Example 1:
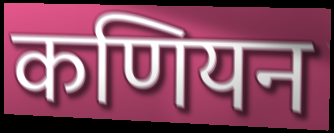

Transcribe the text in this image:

कणियन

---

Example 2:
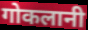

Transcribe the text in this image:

गोकलानी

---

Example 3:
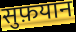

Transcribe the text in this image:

सुफ़यान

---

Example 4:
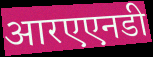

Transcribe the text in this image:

आरएएनडी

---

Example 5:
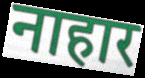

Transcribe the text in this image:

नाहार